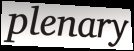
plenary